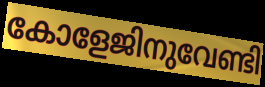
കോളേജിനുവേണ്ടി